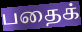
பதைக்